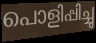
പൊളിപ്പിച്ചു